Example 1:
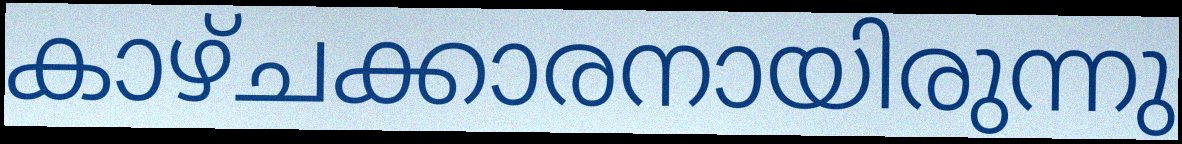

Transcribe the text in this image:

കാഴ്ചക്കാരനായിരുന്നു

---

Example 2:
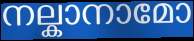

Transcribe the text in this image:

നല്കാനാമോ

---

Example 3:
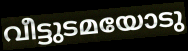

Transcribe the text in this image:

വീട്ടുടമയോടു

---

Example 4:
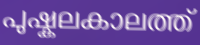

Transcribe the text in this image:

പുഷ്കലകാലത്ത്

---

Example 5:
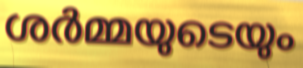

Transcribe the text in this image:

ശർമ്മയുടെയും